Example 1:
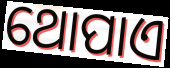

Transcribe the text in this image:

ଥୋପାଏ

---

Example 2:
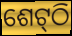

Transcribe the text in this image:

ଶେଟ୍‍ଠି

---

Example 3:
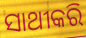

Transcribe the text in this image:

ସାଥୀକରି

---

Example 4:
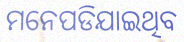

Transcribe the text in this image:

ମନେପଡିଯାଇଥିବ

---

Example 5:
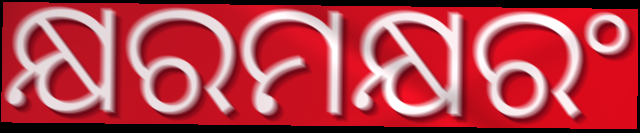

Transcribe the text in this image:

କ୍ଷରମକ୍ଷରଂ